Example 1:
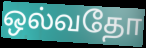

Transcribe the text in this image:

ஒல்வதோ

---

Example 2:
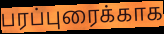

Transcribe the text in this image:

பரப்புரைக்காக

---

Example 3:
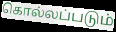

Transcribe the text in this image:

கொல்லப்படும்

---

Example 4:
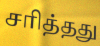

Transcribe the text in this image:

சரித்தது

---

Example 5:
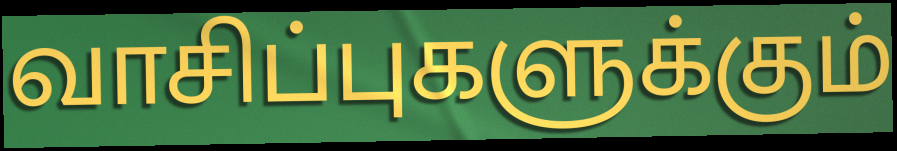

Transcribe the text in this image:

வாசிப்புகளுக்கும்